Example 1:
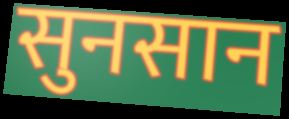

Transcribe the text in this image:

सुनसान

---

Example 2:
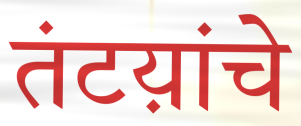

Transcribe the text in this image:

तंटय़ांचे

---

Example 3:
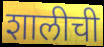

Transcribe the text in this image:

शालीची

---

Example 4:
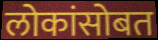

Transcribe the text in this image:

लोकांसोबत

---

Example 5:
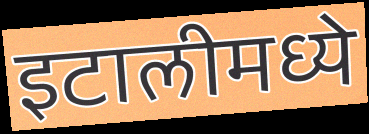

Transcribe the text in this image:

इटालीमध्ये